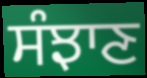
ਸੰਝਾਣ